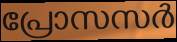
പ്രോസസർ